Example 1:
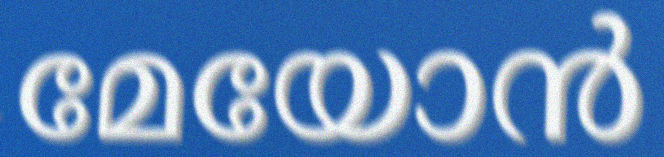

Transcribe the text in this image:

മേയോൻ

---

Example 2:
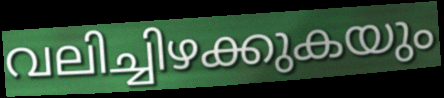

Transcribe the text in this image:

വലിച്ചിഴക്കുകയും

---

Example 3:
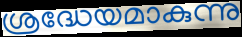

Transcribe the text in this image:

ശ്രദ്ധേയമാകുന്നു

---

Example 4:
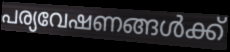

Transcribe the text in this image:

പര്യവേഷണങ്ങൾക്ക്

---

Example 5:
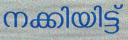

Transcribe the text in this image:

നക്കിയിട്ട്